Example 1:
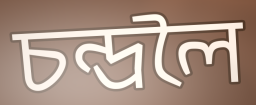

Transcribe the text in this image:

চন্দ্ৰলৈ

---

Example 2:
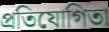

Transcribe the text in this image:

প্ৰতিযোগিতা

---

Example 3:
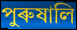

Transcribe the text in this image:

পুৰুষালি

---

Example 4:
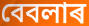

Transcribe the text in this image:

বেবলাৰ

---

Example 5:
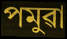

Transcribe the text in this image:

পমুৱা